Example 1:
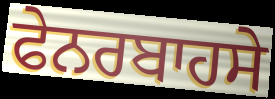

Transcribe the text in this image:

ਫੇਨਰਬਾਹਸੇ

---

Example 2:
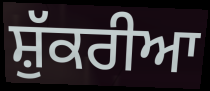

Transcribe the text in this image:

ਸ਼ੁੱਕਰੀਆ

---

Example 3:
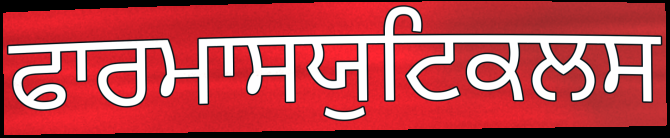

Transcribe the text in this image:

ਫਾਰਮਾਸਯੁਟਿਕਲਸ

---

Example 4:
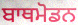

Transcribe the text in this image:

ਬਾਥਮੋਡਨ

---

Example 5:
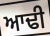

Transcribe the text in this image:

ਆਢੀ